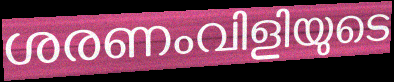
ശരണംവിളിയുടെ